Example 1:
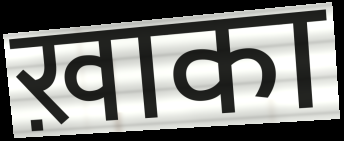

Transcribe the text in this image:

ख़ाका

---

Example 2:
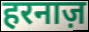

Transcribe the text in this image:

हरनाज़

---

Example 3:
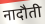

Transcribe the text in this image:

नादौती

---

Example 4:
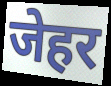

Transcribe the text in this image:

जेहर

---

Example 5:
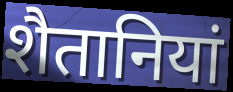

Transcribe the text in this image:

शैतानियां